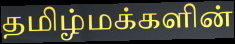
தமிழ்மக்களின்